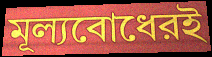
মূল্যবোধেরই